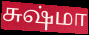
சுஷ்மா